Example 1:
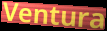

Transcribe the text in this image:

Ventura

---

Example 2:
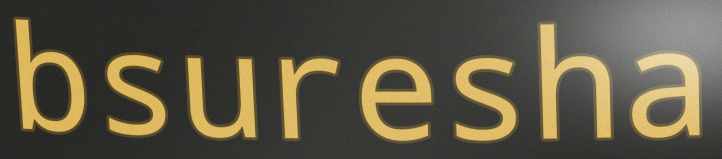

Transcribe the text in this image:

bsuresha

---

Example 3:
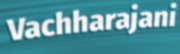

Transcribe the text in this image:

Vachharajani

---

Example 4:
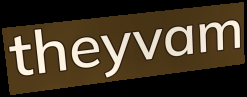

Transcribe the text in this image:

theyvam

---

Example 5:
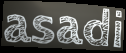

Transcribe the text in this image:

asadi